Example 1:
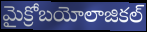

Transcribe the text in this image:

మైక్రోబయోలాజికల్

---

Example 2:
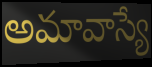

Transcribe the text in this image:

అమావాస్యే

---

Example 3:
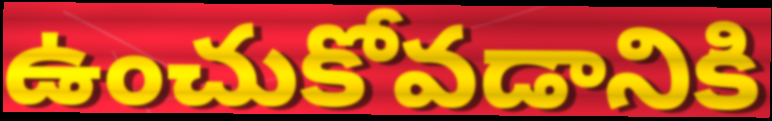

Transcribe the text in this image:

ఉంచుకోవడానికి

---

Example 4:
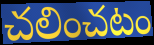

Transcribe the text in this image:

చలించటం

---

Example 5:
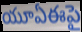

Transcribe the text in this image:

యూఏఈపై